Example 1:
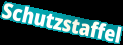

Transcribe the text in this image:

Schutzstaffel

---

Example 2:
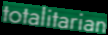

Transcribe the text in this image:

totalitarian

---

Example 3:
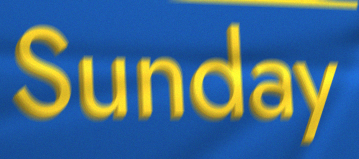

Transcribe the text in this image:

Sunday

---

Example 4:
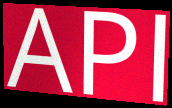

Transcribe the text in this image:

API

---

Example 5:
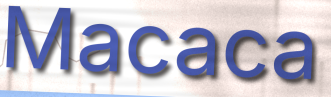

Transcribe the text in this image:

Macaca